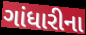
ગાંધારીના